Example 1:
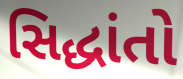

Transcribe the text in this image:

સિદ્ધાંતો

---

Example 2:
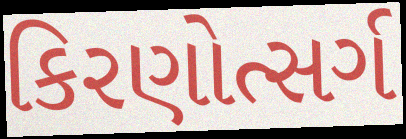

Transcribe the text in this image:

કિરણોત્સર્ગ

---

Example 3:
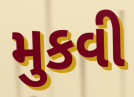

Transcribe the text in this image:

મુકવી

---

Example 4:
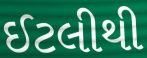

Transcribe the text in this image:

ઈટલીથી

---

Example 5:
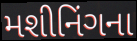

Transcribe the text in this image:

મશીનિંગના